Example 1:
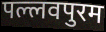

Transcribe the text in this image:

पल्लवपुरम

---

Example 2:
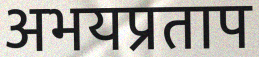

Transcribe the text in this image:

अभयप्रताप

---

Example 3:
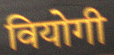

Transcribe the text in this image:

वियोगी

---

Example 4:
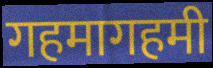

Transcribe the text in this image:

गहमागहमी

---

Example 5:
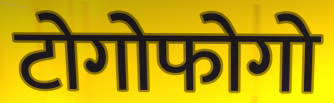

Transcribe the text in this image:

टोगोफोगो